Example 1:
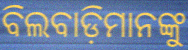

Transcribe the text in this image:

ବିଲବାଡ଼ିମାନଙ୍କୁ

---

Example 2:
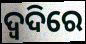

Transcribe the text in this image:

ଦ୍ଵଦିରେ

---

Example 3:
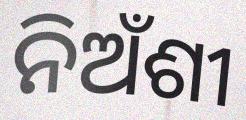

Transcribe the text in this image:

ନିଅଁଶୀ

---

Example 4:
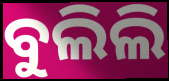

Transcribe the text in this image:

ବୁଲିଲି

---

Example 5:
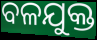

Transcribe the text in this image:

ବଳଯୁକ୍ତ